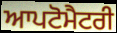
ਆਪਟੋਮੈਟਰੀ